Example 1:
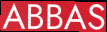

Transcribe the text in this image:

ABBAS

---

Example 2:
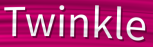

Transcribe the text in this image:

Twinkle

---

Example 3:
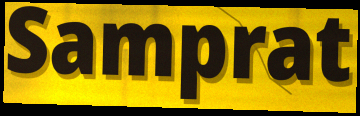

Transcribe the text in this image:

Samprat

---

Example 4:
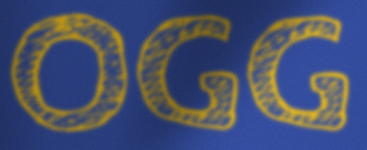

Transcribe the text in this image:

OGG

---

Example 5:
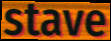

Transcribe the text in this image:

stave